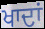
ਖਾਦਾਂ